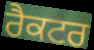
ਰੈਕਟਰ